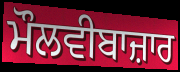
ਮੌਲਵੀਬਾਜ਼ਾਰ